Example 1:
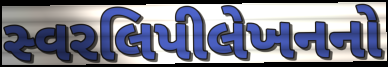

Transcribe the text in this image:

સ્વરલિપીલેખનનો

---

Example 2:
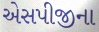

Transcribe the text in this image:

એસપીજીના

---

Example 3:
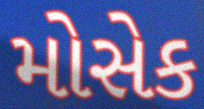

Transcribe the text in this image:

મોસેક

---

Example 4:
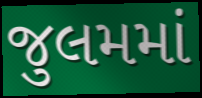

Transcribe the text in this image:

જુલમમાં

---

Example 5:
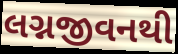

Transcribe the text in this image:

લગ્નજીવનથી